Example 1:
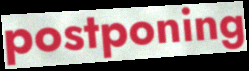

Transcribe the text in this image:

postponing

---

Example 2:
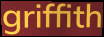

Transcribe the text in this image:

griffith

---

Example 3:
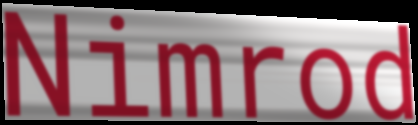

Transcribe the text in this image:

Nimrod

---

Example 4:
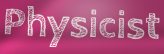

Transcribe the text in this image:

Physicist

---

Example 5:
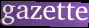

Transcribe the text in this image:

gazette